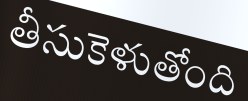
తీసుకెళుతోంది